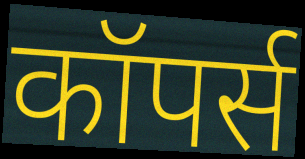
कॉपर्स